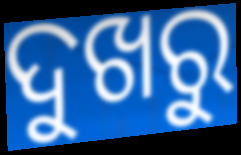
ଦୁଖରୁ